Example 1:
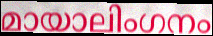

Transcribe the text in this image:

മായാലിംഗനം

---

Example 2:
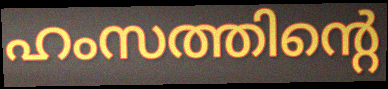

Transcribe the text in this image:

ഹംസത്തിന്റെ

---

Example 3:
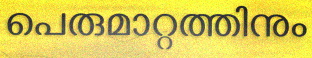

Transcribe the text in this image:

പെരുമാറ്റത്തിനും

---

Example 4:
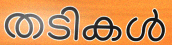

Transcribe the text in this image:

തടികൾ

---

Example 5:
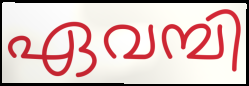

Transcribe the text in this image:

ഏവമ്പി